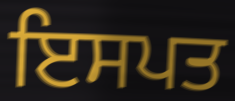
ਇਸਪਤ